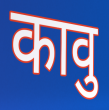
कावु